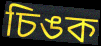
চিঙক